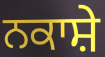
ਨਕਾਸ਼ੇ